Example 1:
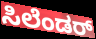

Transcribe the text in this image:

ಸಿಲೆಂಡರ್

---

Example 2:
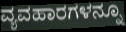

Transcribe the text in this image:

ವ್ಯವಹಾರಗಳನ್ನೂ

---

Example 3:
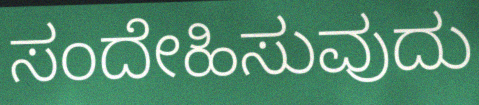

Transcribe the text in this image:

ಸಂದೇಹಿಸುವುದು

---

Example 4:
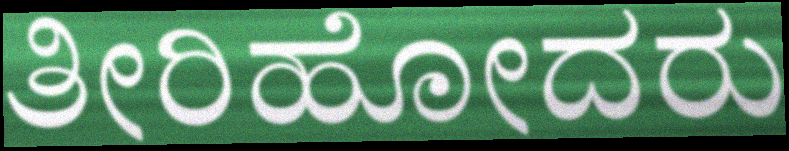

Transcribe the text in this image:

ತೀರಿಹೋದರು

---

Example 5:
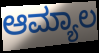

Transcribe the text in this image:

ಆಮ್ಯಾಲ